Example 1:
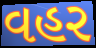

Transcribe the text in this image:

વહર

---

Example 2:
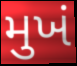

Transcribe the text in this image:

મુખં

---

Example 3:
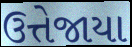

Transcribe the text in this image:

ઉત્તેજાયા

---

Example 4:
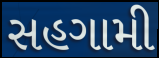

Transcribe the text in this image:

સહગામી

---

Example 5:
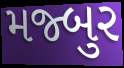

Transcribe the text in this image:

મજ્બુર